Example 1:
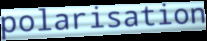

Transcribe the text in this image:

polarisation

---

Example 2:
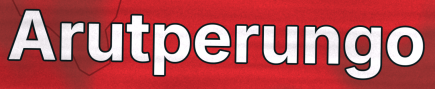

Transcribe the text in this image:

Arutperungo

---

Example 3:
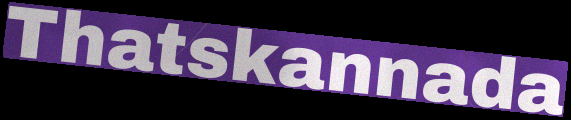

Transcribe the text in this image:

Thatskannada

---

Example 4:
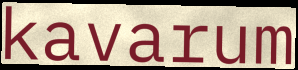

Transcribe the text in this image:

kavarum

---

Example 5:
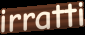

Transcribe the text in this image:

irratti